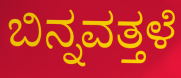
ಬಿನ್ನವತ್ತಳೆ